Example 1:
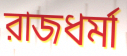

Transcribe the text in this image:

রাজধর্মা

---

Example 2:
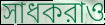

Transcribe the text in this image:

সাধকরাও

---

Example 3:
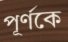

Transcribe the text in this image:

পূর্ণকে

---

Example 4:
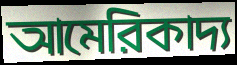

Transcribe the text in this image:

আমেরিকাদ্য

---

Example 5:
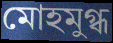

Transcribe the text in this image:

মোহমুগ্ধ